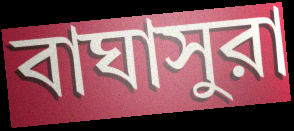
বাঘাসুরা